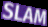
SLAM